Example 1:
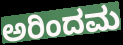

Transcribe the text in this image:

ಅರಿಂದಮ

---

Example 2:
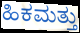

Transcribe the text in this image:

ಹಿಕಮತ್ತು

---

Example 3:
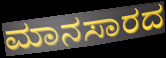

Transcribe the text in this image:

ಮಾನಸಾರದ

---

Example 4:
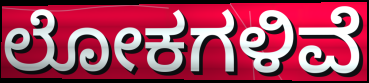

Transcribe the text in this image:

ಲೋಕಗಳಿವೆ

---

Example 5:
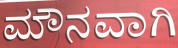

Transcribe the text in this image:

ಮೌನವಾಗಿ